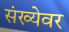
संख्येवर